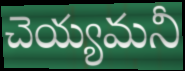
చెయ్యమనీ